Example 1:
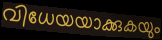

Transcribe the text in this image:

വിധേയയാക്കുകയും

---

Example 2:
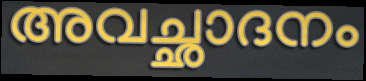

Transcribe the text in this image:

അവച്ഛാദനം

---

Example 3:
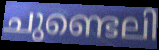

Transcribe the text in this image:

ചുണ്ടെലി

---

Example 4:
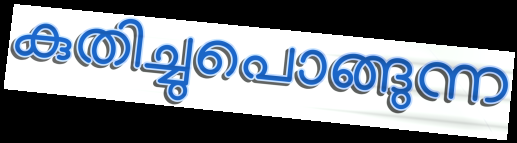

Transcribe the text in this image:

കുതിച്ചുപൊങ്ങുന്ന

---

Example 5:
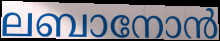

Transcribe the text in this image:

ലബാനോൻ